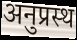
अनुप्रस्थ